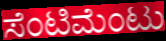
ಸೆಂಟಿಮೆಂಟು